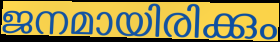
ജനമായിരിക്കും